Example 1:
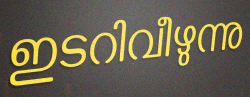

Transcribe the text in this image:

ഇടറിവീഴുന്നു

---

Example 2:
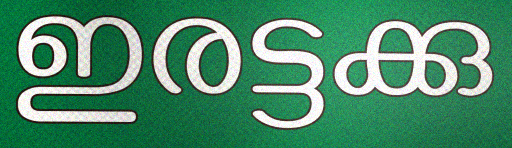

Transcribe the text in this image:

ഇരട്ടക്കു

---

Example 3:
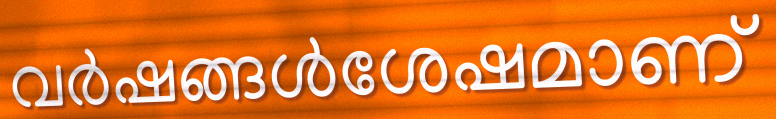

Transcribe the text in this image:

വർഷങ്ങൾശേഷമാണ്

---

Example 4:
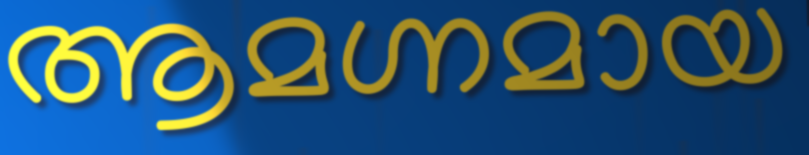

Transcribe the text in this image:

ആമഗ്നമായ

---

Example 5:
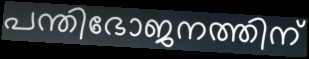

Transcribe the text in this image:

പന്തിഭോജനത്തിന്